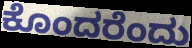
ಕೊಂದರೆಂದು